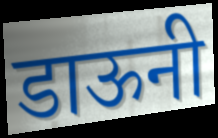
डाऊनी